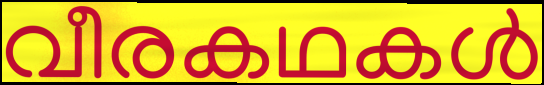
വീരകഥകൾ